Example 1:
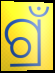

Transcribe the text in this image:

ଗ୍ରଁ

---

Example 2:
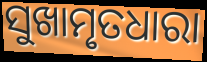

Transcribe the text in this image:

ସୁଖାମୃତଧାରା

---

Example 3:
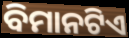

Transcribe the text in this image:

ବିମାନଟିଏ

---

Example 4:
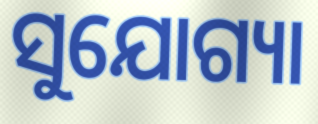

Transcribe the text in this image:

ସୁଯୋଗ୍ୟା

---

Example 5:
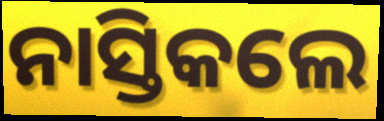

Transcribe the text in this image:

ନାସ୍ତିକଲେ